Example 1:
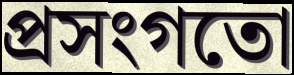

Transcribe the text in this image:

প্ৰসংগতো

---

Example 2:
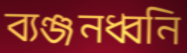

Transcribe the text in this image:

ব্যঞ্জনধ্বনি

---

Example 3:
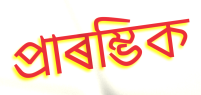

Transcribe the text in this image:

প্ৰাৰম্ভিক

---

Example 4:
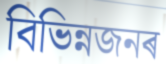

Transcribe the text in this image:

বিভিন্নজনৰ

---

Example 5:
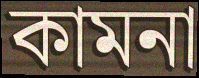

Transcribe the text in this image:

কামনা